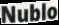
Nublo